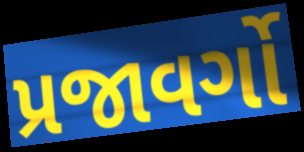
પ્રજાવર્ગો